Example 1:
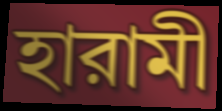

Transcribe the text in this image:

হারামী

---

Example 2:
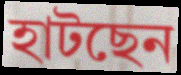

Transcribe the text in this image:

হাটছেন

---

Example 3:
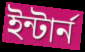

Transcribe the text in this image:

ইন্টার্ন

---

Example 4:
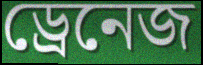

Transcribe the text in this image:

ড্রেনেজ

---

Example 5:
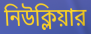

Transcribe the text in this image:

নিউক্লিয়ার